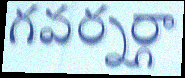
గవర్నర్గా